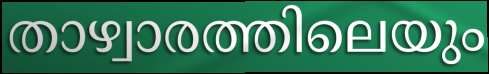
താഴ്വാരത്തിലെയും